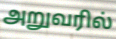
அறுவரில்